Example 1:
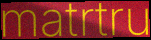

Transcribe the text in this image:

matrtru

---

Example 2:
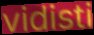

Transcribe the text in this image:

vidisti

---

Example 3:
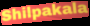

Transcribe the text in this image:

Shilpakala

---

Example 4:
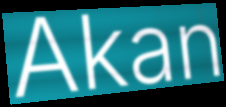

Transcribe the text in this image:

Akan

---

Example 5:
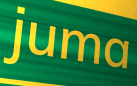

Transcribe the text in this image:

juma